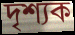
দৃশ্যক